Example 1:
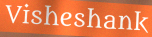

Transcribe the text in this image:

Visheshank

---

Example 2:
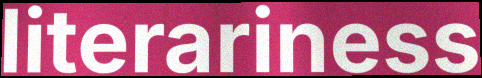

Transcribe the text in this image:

literariness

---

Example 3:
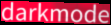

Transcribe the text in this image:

darkmode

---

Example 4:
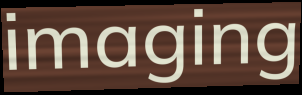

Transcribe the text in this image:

imaging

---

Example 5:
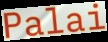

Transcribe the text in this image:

Palai